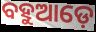
ବହୁଆଡ଼େ